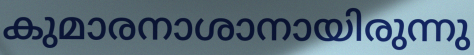
കുമാരനാശാനായിരുന്നു